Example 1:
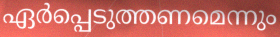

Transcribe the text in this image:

ഏർപ്പെടുത്തണമെന്നും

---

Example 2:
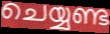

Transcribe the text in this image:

ചെയ്യണ്ട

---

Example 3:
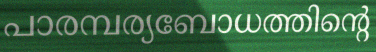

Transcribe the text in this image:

പാരമ്പര്യബോധത്തിന്റെ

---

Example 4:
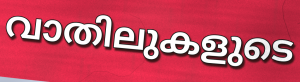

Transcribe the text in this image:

വാതിലുകളുടെ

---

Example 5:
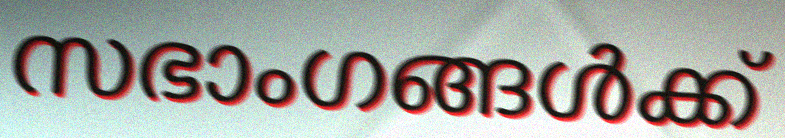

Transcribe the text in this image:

സഭാംഗങ്ങൾക്ക്